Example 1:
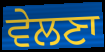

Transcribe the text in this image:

ਵੇਲਣਾ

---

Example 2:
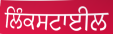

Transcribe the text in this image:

ਲਿੰਕਸਟਾਈਲ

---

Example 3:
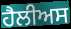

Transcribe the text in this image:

ਹੈਲੀਅਸ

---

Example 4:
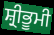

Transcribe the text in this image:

ਸ਼੍ਰੀਭੂਮੀ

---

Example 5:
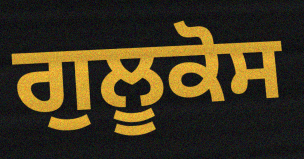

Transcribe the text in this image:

ਗੁਲੂਕੋਸ